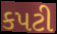
કપટી